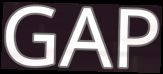
GAP